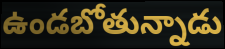
ఉండబోతున్నాడు